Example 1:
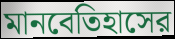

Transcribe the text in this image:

মানবেতিহাসের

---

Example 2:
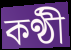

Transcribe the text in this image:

কণ্ঠী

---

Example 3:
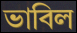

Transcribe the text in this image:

ভাবিল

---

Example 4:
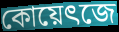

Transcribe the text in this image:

কোয়েৎজে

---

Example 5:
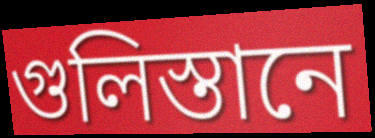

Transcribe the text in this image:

গুলিস্তানে